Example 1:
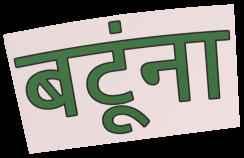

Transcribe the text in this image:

बटूंना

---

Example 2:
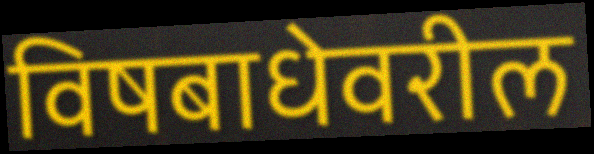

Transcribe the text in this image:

विषबाधेवरील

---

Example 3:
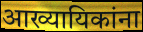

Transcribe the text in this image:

आख्यायिकांना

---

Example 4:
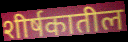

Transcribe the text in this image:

शीर्षकातील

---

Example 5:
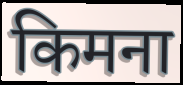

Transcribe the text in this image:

किमना